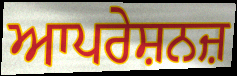
ਆਪਰੇਸ਼ਨਜ਼